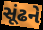
સૂંઢને